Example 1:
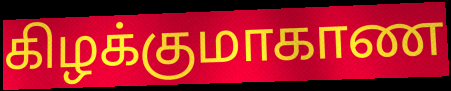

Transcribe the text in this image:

கிழக்குமாகாண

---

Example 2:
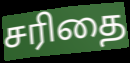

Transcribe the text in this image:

சரிதை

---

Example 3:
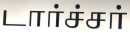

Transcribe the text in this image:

டார்ச்சர்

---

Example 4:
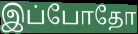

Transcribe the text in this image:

இப்போதோ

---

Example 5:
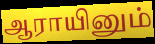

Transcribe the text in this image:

ஆராயினும்